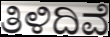
ತಿಳಿದಿವೆ